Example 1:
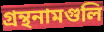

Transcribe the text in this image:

গ্রন্থনামগুলি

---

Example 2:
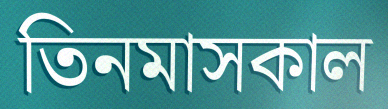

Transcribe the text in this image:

তিনমাসকাল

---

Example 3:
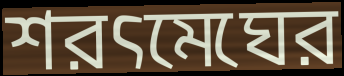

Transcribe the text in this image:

শরৎমেঘের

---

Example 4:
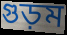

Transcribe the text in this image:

গুড়ম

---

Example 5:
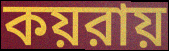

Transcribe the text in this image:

কয়রায়